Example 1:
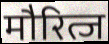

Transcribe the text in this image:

मौरित्ज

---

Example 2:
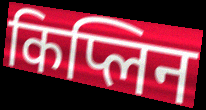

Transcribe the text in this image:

किप्लिन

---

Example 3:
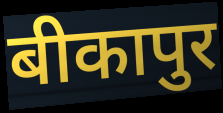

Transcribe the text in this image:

बीकापुर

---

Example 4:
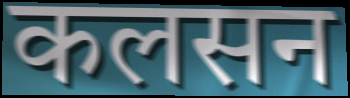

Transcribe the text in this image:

कलसन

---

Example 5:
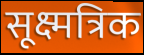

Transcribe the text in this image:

सूक्ष्मत्रिक